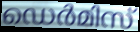
ഡെർമിസ്